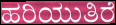
ಹರಿಯುತಿರೆ